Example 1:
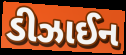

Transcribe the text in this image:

ડીઝાઈન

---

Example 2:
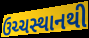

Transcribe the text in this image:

ઉચ્ચસ્થાનથી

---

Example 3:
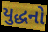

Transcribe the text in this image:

યુદ્ધનો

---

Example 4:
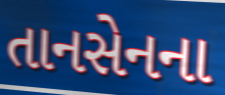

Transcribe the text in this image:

તાનસેનના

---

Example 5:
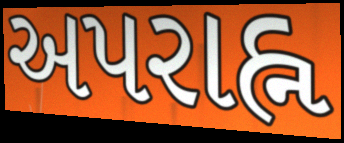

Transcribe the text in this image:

અપરાહ્ન